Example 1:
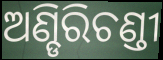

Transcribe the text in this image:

ଅଣ୍ଡିରିଚଣ୍ଡୀ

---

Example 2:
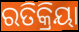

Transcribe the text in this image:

ରତିକ୍ରିୟା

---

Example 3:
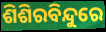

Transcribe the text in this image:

ଶିଶିରବିନ୍ଦୁରେ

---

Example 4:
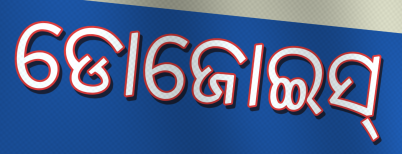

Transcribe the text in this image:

ଡୋଜୋଇସ୍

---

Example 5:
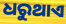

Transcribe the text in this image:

ଧରୁଥାଏ